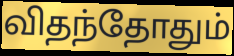
விதந்தோதும்